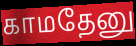
காமதேனு